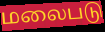
மலைபடு